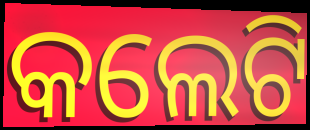
କଲେଟି